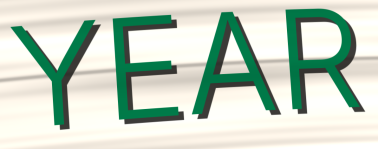
YEAR